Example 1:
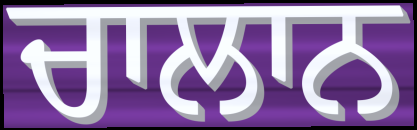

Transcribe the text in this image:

ਚਾਲਾਨ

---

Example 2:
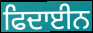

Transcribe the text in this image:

ਫਿਦਾਈਨ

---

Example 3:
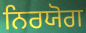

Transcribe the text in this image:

ਨਿਰਯੋਗ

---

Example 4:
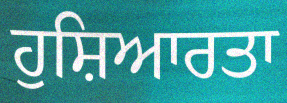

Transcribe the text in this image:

ਹੁਸ਼ਿਆਰਤਾ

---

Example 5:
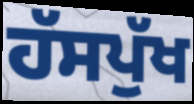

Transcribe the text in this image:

ਹੱਸਪੁੱਖ